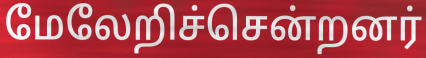
மேலேறிச்சென்றனர்